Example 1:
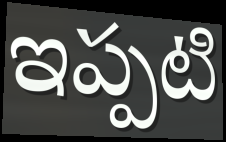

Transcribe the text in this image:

ఇప్పటి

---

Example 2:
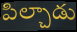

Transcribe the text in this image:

పిల్చాడు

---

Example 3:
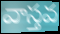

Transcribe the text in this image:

వాస్తవ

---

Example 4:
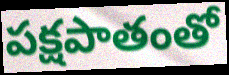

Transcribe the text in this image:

పక్షపాతంతో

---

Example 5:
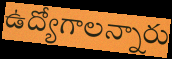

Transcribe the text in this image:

ఉద్యోగాలన్నారు